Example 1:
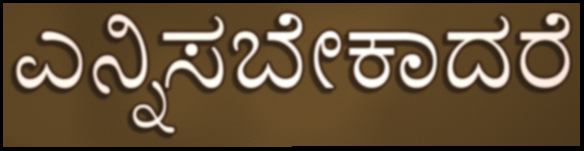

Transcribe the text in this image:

ಎನ್ನಿಸಬೇಕಾದರೆ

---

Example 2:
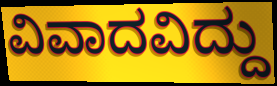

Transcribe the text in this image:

ವಿವಾದವಿದ್ದು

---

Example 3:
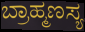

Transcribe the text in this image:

ಬ್ರಾಹ್ಮಣಸ್ಯ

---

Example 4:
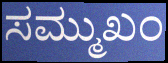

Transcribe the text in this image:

ಸಮ್ಮುಖಂ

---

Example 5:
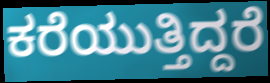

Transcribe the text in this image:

ಕರೆಯುತ್ತಿದ್ದರೆ